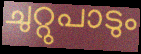
ചുറ്റുപാടും